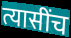
त्यासींच